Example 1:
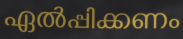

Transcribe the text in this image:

ഏൽപ്പിക്കണം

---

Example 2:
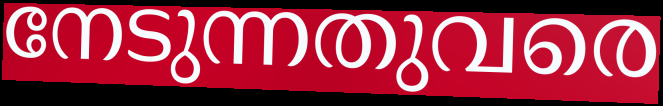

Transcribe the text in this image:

നേടുന്നതുവരെ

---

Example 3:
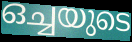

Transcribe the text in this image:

ഒച്ചയുടെ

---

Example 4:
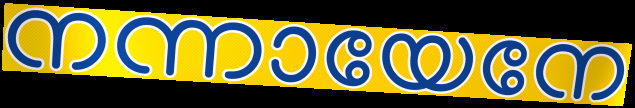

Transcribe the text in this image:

നന്നായേനേ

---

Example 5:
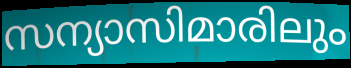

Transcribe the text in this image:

സന്യാസിമാരിലും